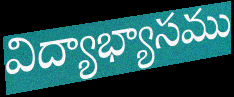
విద్యాభ్యాసము